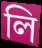
লি